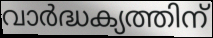
വാർദ്ധക്യത്തിന്